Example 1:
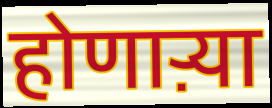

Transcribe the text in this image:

होणाऱ्‍या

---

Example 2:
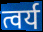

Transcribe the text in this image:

त्वर्य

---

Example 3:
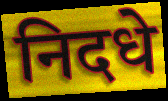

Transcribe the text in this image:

निदधे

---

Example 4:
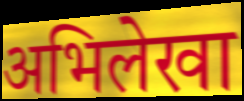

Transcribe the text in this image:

अभिलेखा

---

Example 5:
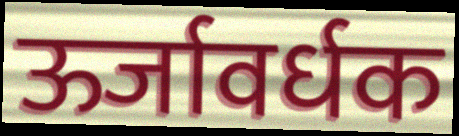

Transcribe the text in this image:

ऊर्जावर्धक